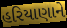
હરિયાણાને